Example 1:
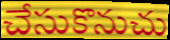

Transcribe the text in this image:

చేసుకొనుచు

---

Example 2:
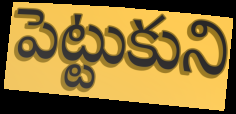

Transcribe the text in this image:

పెట్టుకుని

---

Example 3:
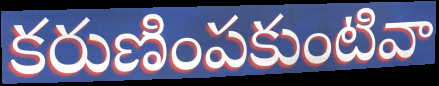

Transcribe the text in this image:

కరుణింపకుంటివా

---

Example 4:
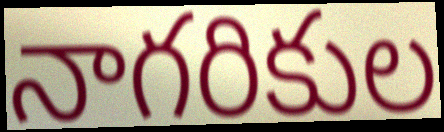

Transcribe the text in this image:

నాగరికుల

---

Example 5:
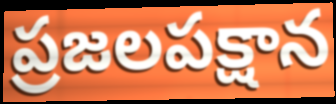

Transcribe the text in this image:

ప్రజలపక్షాన